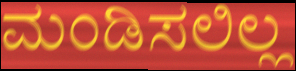
ಮಂಡಿಸಲಿಲ್ಲ